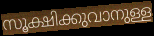
സൂക്ഷിക്കുവാനുള്ള